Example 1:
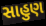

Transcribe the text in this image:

સાહુણ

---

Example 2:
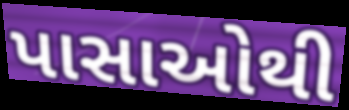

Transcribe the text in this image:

પાસાઓથી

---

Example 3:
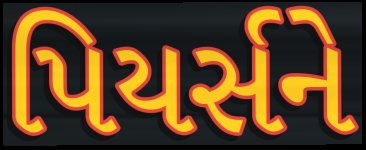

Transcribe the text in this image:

પિયર્સને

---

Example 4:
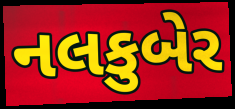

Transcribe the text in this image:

નલકુબેર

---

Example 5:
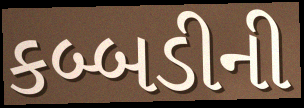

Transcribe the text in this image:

કબ્બડીની